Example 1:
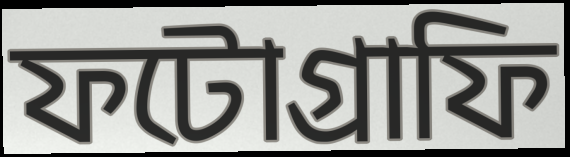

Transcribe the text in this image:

ফটোগ্ৰাফি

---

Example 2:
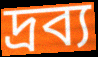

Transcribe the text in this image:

দ্ৰব্য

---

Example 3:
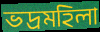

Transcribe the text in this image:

ভদ্ৰমহিলা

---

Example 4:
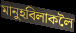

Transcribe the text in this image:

মানুহবিলাকলৈ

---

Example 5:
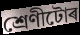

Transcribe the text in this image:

শ্ৰেণীটোৰ